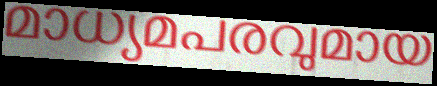
മാധ്യമപരവുമായ